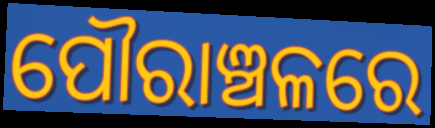
ପୌରାଞ୍ଚଳରେ